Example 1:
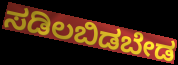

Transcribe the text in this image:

ಸಡಿಲಬಿಡಬೇಡ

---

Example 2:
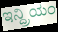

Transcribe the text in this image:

ಇನ್ದ್ರಿಯಂ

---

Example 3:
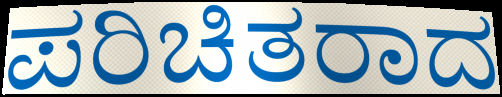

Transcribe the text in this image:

ಪರಿಚಿತರಾದ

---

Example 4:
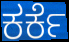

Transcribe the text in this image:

ಕರ್ಕೆ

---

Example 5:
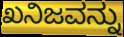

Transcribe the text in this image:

ಖನಿಜವನ್ನು